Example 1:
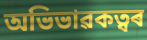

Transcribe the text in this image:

অভিভাৱকত্বৰ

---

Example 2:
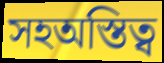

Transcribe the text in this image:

সহঅস্তিত্ব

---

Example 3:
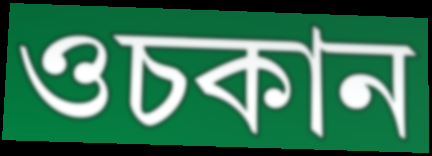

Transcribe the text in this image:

ওচকান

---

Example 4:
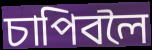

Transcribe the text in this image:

চাপিবলৈ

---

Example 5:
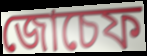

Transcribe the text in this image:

জোচেফ